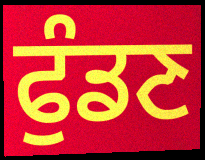
ਫੁੰਡਣ